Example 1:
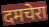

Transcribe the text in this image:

दमचेरा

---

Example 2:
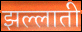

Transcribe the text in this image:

झल्लाती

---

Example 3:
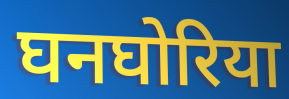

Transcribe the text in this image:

घनघोरिया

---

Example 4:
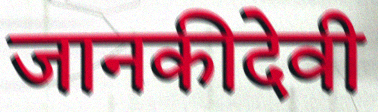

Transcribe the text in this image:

जानकीदेवी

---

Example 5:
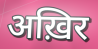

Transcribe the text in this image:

अख़िर